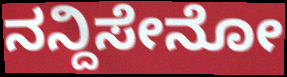
ನನ್ದಿಸೇನೋ